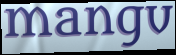
mangu